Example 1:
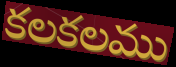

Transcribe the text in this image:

కలకలము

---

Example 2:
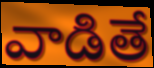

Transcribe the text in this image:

వాడితే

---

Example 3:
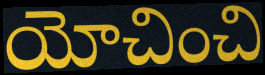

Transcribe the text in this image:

యోచించి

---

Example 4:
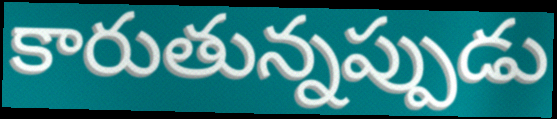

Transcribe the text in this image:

కారుతున్నప్పుడు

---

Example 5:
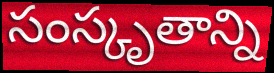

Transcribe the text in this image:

సంస్కృతాన్ని